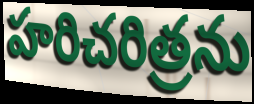
హరిచరిత్రను